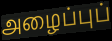
அழைப்புப்